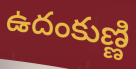
ఉదంకుణ్ణి